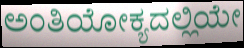
ಅಂತಿಯೋಕ್ಯದಲ್ಲಿಯೇ